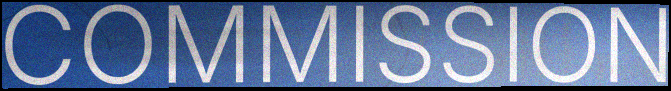
COMMISSION